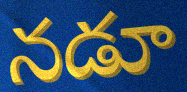
నడూ